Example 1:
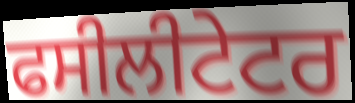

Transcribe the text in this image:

ਫਸੀਲੀਟੇਟਰ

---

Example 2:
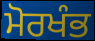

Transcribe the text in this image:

ਮੋਰਖੰਭ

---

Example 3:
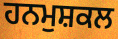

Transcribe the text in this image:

ਹਨਮੁਸ਼ਕਲ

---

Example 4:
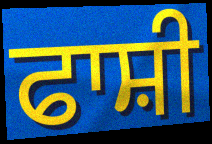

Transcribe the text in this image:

ਫਾਸ਼ੀ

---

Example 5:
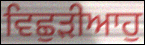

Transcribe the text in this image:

ਵਿਛੁੜੀਆਹੁ